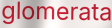
glomerata